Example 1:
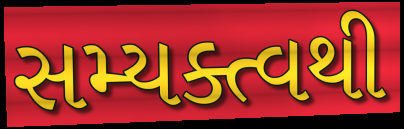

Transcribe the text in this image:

સમ્યક્ત્વથી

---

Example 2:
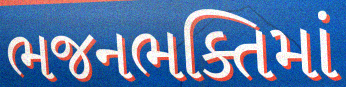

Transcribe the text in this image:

ભજનભક્તિમાં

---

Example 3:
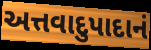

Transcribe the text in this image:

અત્તવાદુપાદાનં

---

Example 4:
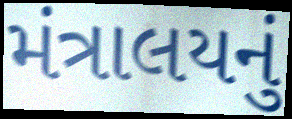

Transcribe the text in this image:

મંત્રાલયનું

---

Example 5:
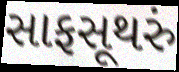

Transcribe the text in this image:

સાફસૂથરું